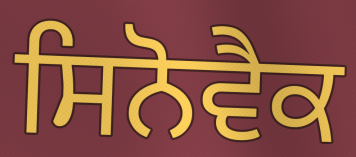
ਸਿਨੋਵੈਕ